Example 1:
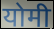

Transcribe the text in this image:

योमी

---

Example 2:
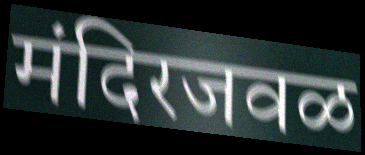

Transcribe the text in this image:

मंदिरजवळ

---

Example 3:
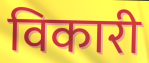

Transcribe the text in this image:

विकारी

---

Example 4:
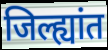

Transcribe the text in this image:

जिल्ह्यांत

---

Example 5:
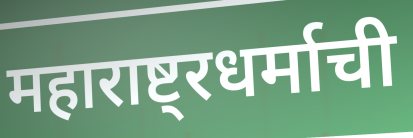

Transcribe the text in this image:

महाराष्ट्रधर्माची